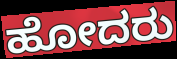
ಹೋದರು